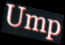
Ump